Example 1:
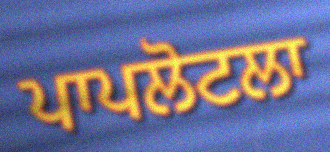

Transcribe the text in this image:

ਪਾਪਲੋਟਲਾ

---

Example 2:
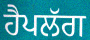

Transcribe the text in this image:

ਹੈਪਲੱਗ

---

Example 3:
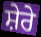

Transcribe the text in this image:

ਸ਼ੇਰੇ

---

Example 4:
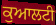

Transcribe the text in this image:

ਕੁਆਲਟੀ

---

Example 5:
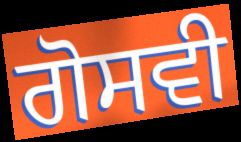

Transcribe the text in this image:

ਗੋਸਵੀ